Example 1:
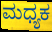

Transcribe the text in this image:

ಮಧ್ಯಕ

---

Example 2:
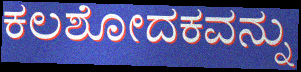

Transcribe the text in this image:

ಕಲಶೋದಕವನ್ನು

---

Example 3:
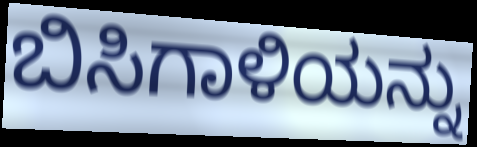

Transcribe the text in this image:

ಬಿಸಿಗಾಳಿಯನ್ನು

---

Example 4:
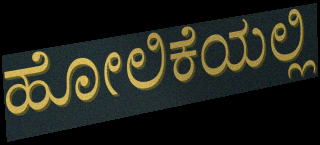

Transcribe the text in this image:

ಹೋಲಿಕೆಯಲ್ಲಿ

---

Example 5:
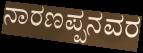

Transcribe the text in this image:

ನಾರಣಪ್ಪನವರ